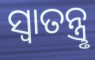
ସ୍ବାତନ୍ତ୍ରୢ